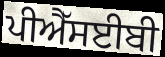
ਪੀਐੱਸਈਬੀ